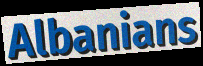
Albanians